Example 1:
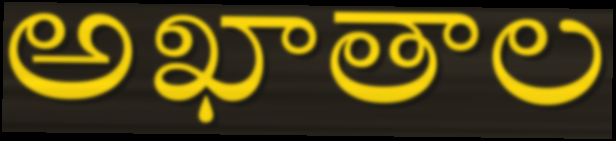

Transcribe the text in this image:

అఖాతాల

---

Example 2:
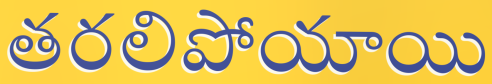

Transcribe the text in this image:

తరలిపోయాయి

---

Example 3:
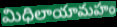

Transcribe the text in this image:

మిధిలాయామహం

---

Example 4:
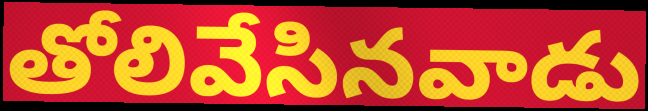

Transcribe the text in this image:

తోలివేసినవాడు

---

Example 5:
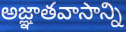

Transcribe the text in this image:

అజ్ఞాతవాసాన్ని